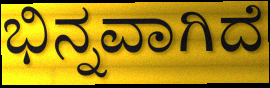
ಭಿನ್ನವಾಗಿದೆ